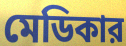
মেডিকার